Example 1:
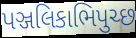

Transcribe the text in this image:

પઞ્જલિકાભિપુચ્છ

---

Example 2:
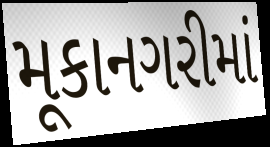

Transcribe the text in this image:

મૂકાનગરીમાં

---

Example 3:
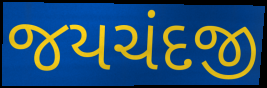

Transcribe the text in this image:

જયચંદજી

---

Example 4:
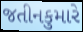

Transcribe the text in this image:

જતીનકુમારે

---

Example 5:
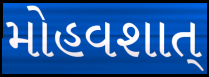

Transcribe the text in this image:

મોહવશાત્